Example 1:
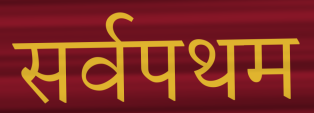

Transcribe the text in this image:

सर्वपथम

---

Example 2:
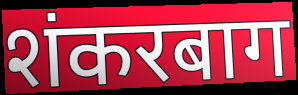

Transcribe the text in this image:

शंकरबाग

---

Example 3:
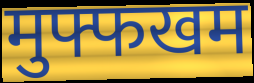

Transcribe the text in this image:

मुफ्फखम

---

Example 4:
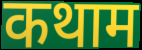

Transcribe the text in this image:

कथाम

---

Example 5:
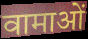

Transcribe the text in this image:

वामाओं